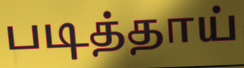
படித்தாய்